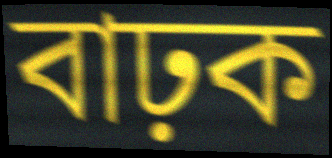
বাঢ়ক